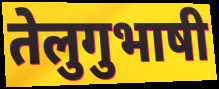
तेलुगुभाषी